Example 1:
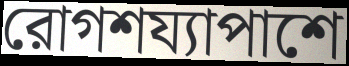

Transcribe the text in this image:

রোগশয্যাপাশে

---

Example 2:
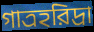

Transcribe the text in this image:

গাত্রহরিদ্রা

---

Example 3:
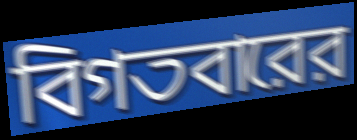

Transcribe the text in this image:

বিগতবারের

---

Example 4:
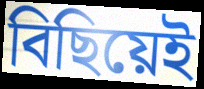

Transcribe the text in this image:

বিছিয়েই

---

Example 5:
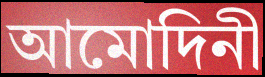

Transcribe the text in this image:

আমোদিনী